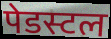
पेडस्टल